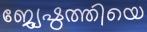
ജ്യേഷ്ഠത്തിയെ